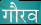
गौरव